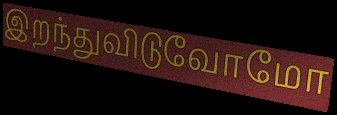
இறந்துவிடுவோமோ